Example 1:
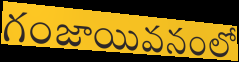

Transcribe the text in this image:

గంజాయివనంలో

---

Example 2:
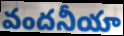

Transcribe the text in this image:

వందనీయా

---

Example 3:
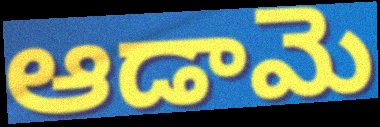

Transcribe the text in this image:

ఆడామె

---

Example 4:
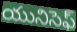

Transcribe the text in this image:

యునిసెఫ్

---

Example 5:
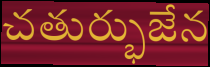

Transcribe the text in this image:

చతుర్భుజేన